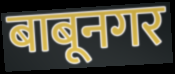
बाबूनगर